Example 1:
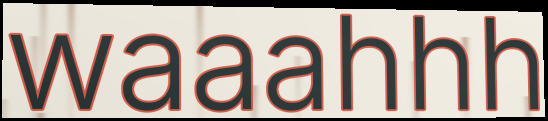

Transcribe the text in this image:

waaahhh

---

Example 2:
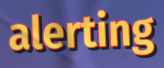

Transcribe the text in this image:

alerting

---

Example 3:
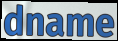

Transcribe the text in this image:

dname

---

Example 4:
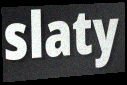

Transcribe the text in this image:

slaty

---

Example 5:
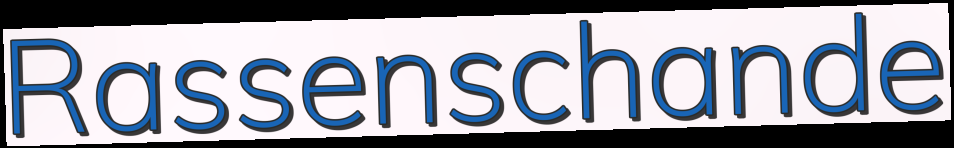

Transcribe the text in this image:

Rassenschande